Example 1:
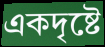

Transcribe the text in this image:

একদৃষ্টে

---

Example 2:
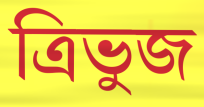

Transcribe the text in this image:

ত্রিভুজ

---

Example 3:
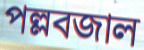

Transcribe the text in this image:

পল্লবজাল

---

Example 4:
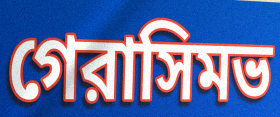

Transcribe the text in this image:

গেরাসিমভ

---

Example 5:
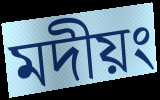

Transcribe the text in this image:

মদীয়ং